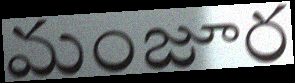
మంజూర